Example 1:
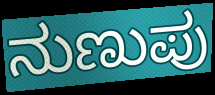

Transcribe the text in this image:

ನುಣುಪು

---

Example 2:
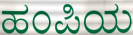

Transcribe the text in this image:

ಹಂಪಿಯ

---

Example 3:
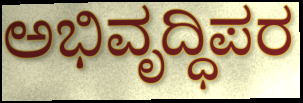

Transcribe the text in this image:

ಅಭಿವೃದ್ಧಿಪರ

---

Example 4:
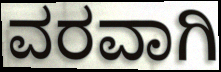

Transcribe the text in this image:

ವರವಾಗಿ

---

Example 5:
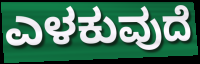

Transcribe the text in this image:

ಎಳಕುವುದೆ